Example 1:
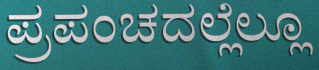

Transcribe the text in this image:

ಪ್ರಪಂಚದಲ್ಲೆಲ್ಲೂ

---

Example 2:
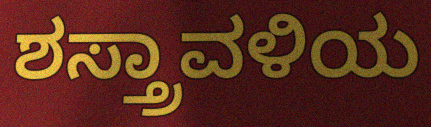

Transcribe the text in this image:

ಶಸ್ತ್ರಾವಳಿಯ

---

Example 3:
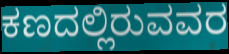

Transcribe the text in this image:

ಕಣದಲ್ಲಿರುವವರ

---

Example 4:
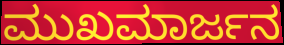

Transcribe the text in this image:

ಮುಖಮಾರ್ಜನ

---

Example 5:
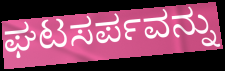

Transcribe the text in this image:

ಘಟಸರ್ಪವನ್ನು